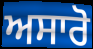
ਅਸਾਰੋ